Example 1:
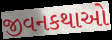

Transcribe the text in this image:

જીવનકથાઓ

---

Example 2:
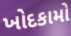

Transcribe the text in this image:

ખોદકામો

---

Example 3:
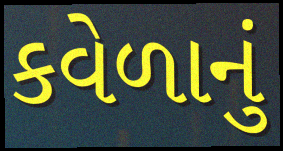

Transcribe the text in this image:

કવેળાનું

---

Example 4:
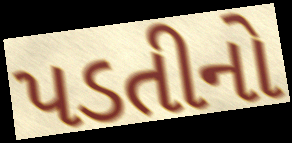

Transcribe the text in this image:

પડતીનો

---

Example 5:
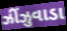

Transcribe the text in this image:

ઝીંઝુવાડા